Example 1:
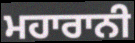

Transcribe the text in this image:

ਮਹਾਰਾਨੀ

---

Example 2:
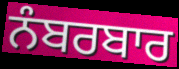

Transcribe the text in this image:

ਨੰਬਰਬਾਰ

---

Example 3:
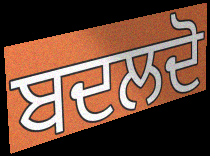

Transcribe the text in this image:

ਬਦਲਦੋ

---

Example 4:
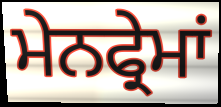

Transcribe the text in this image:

ਮੇਨਫ੍ਰੇਮਾਂ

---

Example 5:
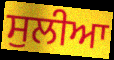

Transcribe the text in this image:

ਸੁਲੀਆ